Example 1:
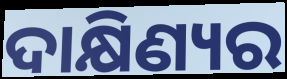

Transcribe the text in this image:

ଦାକ୍ଷିଣ୍ୟର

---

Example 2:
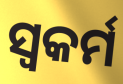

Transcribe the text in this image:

ସ୍ଵକର୍ମ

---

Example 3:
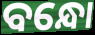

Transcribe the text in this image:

ବନ୍ଧୋ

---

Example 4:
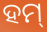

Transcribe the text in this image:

ହମ୍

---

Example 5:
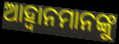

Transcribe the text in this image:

ଆହ୍ୱାନମାନଙ୍କୁ